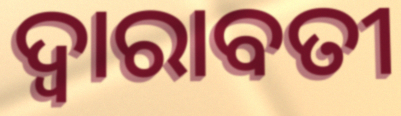
ଦ୍ଵାରାବତୀ